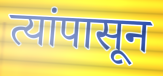
त्यांपासून